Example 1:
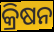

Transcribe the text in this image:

କ୍ରିଷନ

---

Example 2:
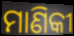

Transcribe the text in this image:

ମାଣିକୀ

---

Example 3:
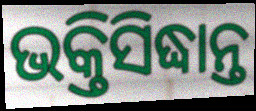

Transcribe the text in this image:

ଭକ୍ତିସିଦ୍ଧାନ୍ତ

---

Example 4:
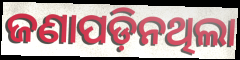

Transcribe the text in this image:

ଜଣାପଡ଼ିନଥିଲା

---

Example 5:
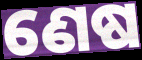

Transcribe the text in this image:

ଣେଷ